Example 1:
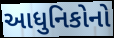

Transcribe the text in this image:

આધુનિકોનો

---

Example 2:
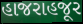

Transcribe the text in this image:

હાજરાહજૂર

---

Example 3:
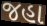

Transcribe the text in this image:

જહા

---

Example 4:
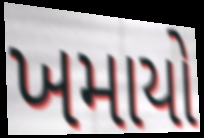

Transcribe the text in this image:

ખમાયો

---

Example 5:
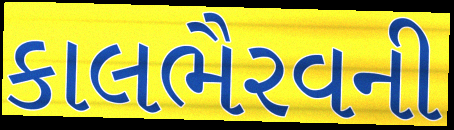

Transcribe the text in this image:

કાલભૈરવની